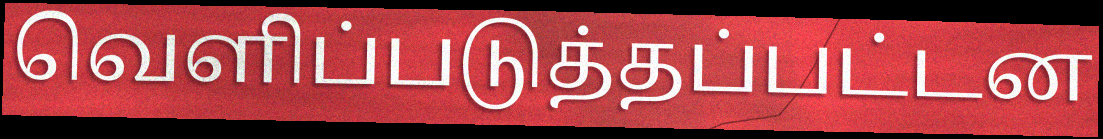
வெளிப்படுத்தப்பட்டன